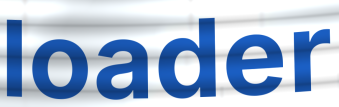
loader